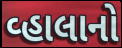
વ્હાલાનો